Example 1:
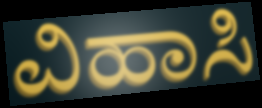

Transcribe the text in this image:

ವಿಹಾಸಿ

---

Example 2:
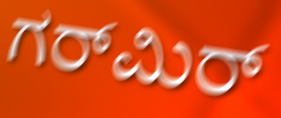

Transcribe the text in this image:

ಗರ್‌ಮಿರ್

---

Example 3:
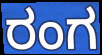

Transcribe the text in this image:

ರಂಗ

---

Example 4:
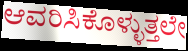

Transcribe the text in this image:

ಆವರಿಸಿಕೊಳ್ಳುತ್ತಲೇ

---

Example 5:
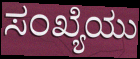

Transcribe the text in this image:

ಸಂಖ್ಯೆಯು